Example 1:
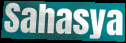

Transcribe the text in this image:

Sahasya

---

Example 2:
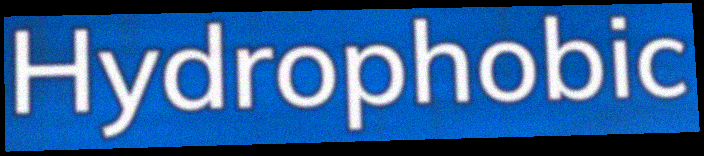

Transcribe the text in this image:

Hydrophobic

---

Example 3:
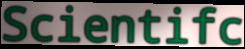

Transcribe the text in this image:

Scientifc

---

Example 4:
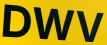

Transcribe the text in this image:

DWV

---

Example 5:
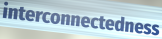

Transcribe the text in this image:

interconnectedness